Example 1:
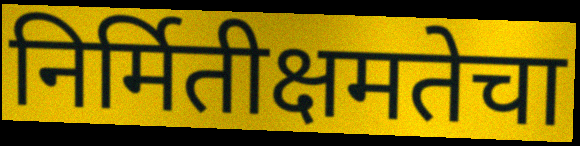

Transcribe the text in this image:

निर्मितीक्षमतेचा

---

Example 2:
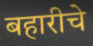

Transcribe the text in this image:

बहारीचे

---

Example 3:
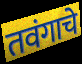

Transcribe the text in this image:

तवंगाचे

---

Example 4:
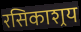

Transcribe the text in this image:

रसिकाश्रय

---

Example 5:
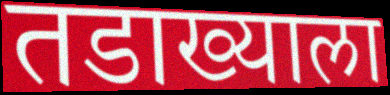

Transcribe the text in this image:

तडाख्याला